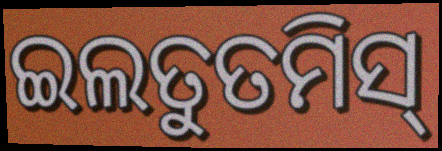
ଇଲତୁତମିସ୍